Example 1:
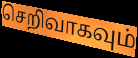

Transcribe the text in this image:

செறிவாகவும்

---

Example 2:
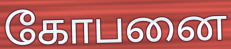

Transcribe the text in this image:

கோபனை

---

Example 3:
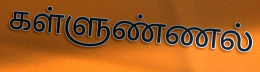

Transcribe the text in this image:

கள்ளுண்ணல்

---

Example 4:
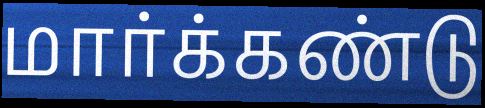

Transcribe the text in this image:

மார்க்கண்டு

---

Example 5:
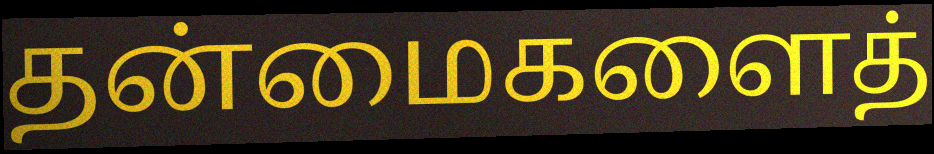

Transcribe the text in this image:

தன்மைகளைத்